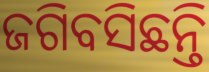
ଜଗିବସିଛନ୍ତି